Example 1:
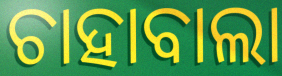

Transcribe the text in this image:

ଚାହାବାଲା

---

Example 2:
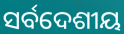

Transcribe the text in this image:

ସର୍ବଦେଶୀୟ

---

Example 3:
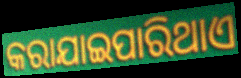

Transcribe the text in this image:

କରାଯାଇପାରିଥାଏ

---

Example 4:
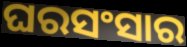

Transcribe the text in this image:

ଘରସଂସାର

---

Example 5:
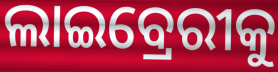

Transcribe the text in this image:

ଲାଇବ୍ରେରୀକୁ